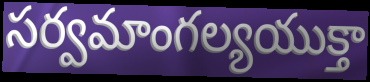
సర్వమాంగల్యయుక్తా